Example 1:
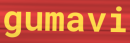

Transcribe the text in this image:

gumavi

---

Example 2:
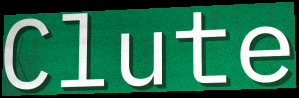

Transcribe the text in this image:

Clute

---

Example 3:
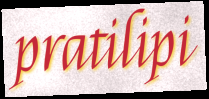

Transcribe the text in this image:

pratilipi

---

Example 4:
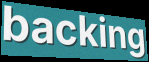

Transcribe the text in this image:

backing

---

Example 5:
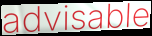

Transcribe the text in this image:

advisable